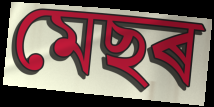
মেছৰ